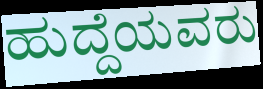
ಹುದ್ದೆಯವರು